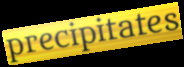
precipitates